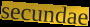
secundae